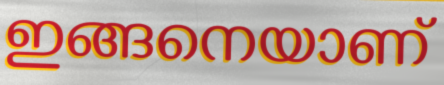
ഇങ്ങനെയാണ്